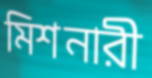
মিশনারী